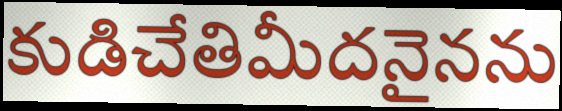
కుడిచేతిమీదనైనను